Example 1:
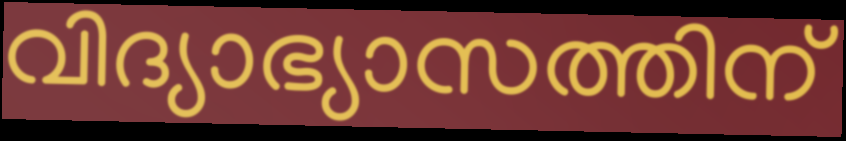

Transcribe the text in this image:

വിദ്യാഭ്യാസത്തിന്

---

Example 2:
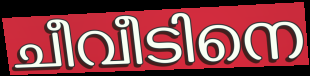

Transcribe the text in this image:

ചീവീടിനെ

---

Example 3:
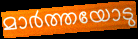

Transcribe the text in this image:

മാർത്തയോടു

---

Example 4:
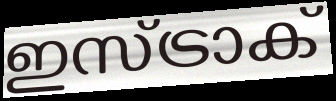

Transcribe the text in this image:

ഇസ്ട്രാക്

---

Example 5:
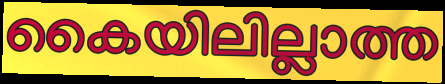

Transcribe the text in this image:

കൈയിലില്ലാത്ത